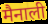
मैनाली